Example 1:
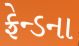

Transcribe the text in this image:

ફ્રેન્ડના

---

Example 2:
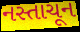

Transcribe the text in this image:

નસ્તાચૂન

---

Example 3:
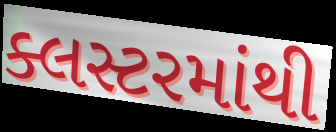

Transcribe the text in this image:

ક્લસ્ટરમાંથી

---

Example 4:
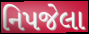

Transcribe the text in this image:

નિપજેલા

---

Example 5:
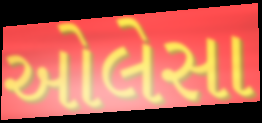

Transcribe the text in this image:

ઓલેસા